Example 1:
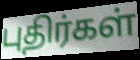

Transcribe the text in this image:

புதிர்கள்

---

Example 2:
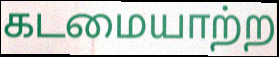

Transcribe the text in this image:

கடமையாற்ற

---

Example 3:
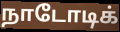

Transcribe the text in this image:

நாடோடிக்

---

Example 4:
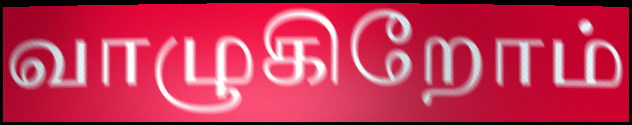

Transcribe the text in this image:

வாழுகிறோம்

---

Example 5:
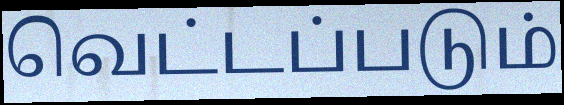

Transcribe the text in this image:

வெட்டப்படும்